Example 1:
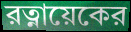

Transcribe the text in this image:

রত্নায়েকের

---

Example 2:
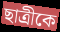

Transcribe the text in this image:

ছাত্রীকে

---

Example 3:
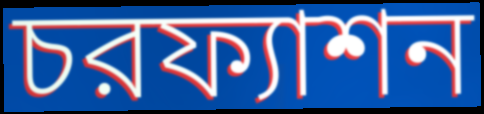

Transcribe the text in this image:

চরফ্যাশন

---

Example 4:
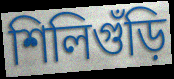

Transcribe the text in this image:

শিলিগুঁড়ি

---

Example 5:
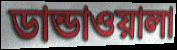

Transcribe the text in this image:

ডান্ডাওয়ালা